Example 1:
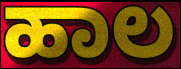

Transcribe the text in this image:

ಹಾಲ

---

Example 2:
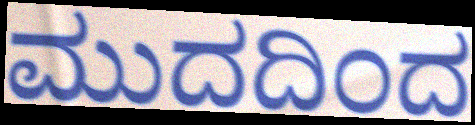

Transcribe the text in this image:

ಮುದದಿಂದ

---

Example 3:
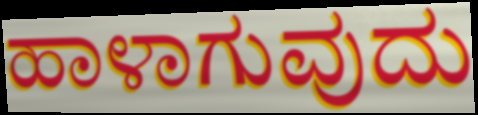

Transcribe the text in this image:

ಹಾಳಾಗುವುದು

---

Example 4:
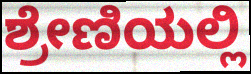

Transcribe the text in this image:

ಶ್ರೇಣಿಯಲ್ಲಿ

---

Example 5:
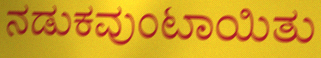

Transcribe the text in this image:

ನಡುಕವುಂಟಾಯಿತು